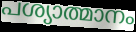
പശ്യാത്മാനം